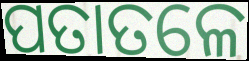
ପତାତଳେ